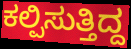
ಕಲ್ಪಿಸುತ್ತಿದ್ದ